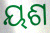
ୟଶ